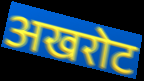
अखरोट